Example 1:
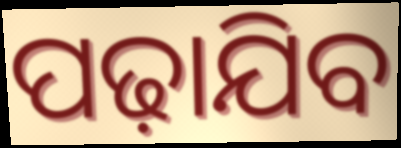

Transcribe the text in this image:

ପଢ଼ାଯିବ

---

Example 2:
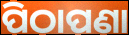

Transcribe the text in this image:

ପିଠାପଣା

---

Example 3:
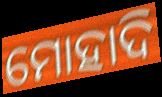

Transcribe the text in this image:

ମୋହାଦି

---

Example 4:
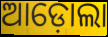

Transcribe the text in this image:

ଆଡ଼ୋଲା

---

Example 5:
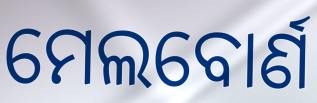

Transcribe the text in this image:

ମେଲବୋର୍ଣ